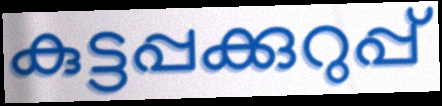
കുട്ടപ്പക്കുറുപ്പ്